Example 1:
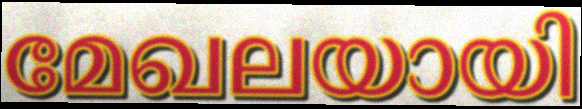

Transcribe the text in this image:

മേഖലയായി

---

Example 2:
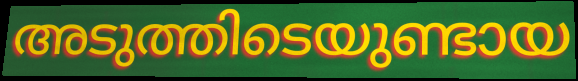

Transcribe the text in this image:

അടുത്തിടെയുണ്ടായ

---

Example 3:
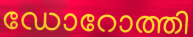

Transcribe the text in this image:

ഡോറോത്തി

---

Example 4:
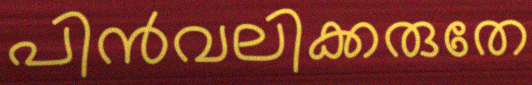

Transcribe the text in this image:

പിൻവലിക്കരുതേ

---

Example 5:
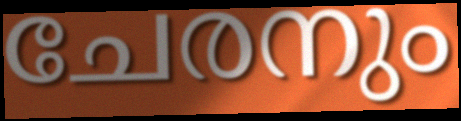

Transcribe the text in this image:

ചേരനും